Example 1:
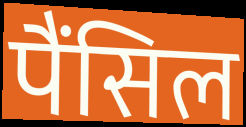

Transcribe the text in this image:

पैंसिल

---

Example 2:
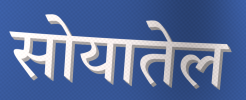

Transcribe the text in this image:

सोयातेल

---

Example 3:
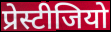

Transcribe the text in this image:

प्रेस्टीजियो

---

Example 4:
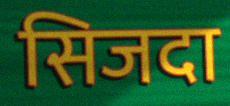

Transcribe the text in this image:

सिजदा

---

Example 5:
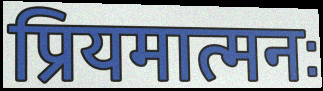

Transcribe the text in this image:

प्रियमात्मनः